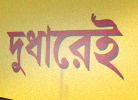
দুধারেই